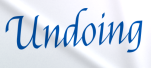
Undoing